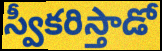
స్వీకరిస్తాడో